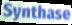
Synthase